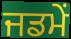
ਜਡਮੇਂ